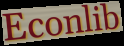
Econlib